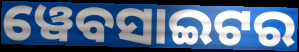
ୱେବସାଇଟର